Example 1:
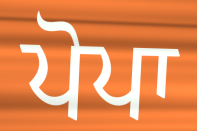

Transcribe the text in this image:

ਪੋਪਾ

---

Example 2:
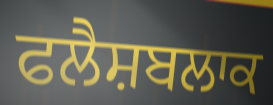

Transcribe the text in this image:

ਫਲੈਸ਼ਬਲਾਕ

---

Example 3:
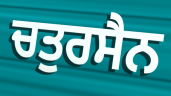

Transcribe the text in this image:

ਚਤੁਰਸੈਨ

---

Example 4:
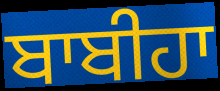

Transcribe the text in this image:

ਬਾਬੀਹਾ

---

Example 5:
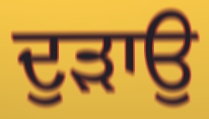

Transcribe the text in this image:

ਦੁੜਾਉ